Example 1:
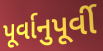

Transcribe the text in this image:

પૂર્વાનુપૂર્વી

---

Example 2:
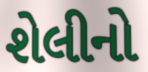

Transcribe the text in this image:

શેલીનો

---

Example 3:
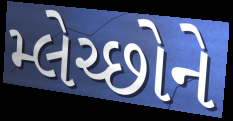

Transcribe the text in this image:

મ્લેચ્છોને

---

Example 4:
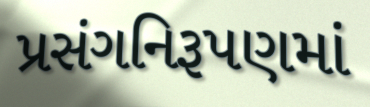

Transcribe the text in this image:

પ્રસંગનિરૂપણમાં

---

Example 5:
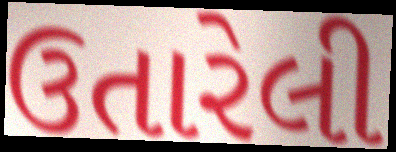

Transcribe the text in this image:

ઉતારેલી